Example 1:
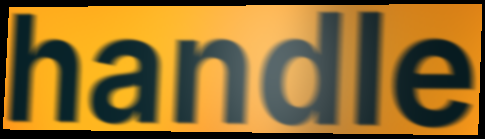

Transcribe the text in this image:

handle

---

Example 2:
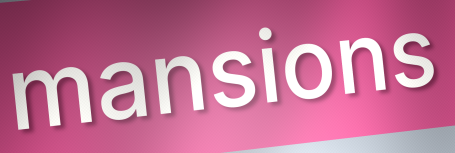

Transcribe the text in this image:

mansions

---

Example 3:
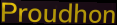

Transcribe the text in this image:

Proudhon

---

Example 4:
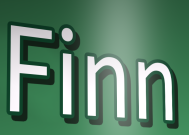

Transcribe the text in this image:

Finn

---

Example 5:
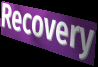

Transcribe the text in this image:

Recovery